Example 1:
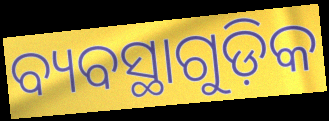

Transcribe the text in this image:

ବ୍ୟବସ୍ଥାଗୁଡ଼ିକ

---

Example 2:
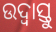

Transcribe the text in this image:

ଉଦ୍ବାସ୍ତୁ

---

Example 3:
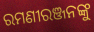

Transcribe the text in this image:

ରମଣୀରଞ୍ଜନଙ୍କୁ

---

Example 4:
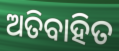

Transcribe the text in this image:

ଅତିବାହିତ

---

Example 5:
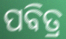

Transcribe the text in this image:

ପବିତ୍ର